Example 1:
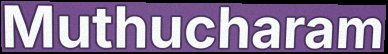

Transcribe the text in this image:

Muthucharam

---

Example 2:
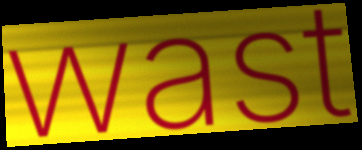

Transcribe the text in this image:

wast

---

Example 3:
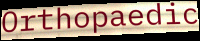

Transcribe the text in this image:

Orthopaedic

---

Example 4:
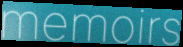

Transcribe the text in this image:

memoirs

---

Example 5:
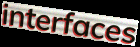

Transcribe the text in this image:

interfaces